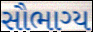
સૌભાગ્ય